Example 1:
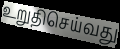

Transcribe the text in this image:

உறுதிசெய்வது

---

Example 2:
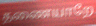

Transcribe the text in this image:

தணையாறே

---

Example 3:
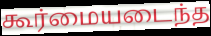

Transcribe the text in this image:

கூர்மையடைந்த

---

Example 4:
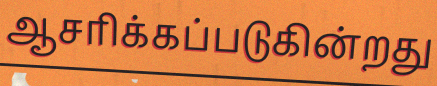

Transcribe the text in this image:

ஆசரிக்கப்படுகின்றது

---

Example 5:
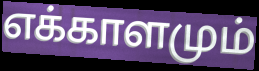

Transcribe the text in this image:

எக்காளமும்